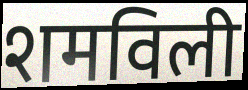
शमविली